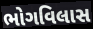
ભોગવિલાસ